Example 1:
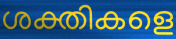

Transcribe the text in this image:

ശക്തികളെ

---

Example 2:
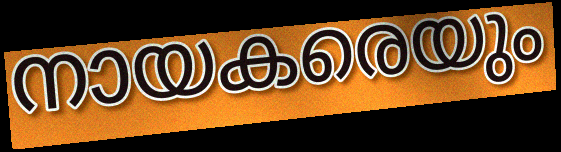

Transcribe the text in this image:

നായകരെയും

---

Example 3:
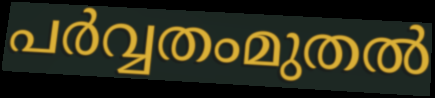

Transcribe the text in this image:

പർവ്വതംമുതൽ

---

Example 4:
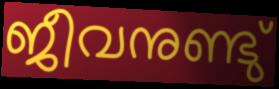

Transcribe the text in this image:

ജീവനുണ്ടു്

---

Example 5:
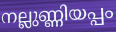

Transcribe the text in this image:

നല്ലുണ്ണിയപ്പം